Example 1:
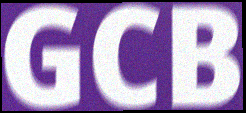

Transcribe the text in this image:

GCB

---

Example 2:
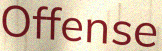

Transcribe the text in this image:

Offense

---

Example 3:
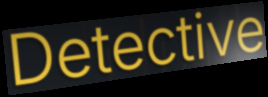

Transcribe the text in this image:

Detective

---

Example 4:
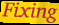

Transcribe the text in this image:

Fixing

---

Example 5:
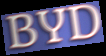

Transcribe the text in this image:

BYD